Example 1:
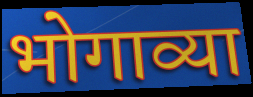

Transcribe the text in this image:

भोगाव्या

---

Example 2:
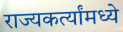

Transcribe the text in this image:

राज्यकर्त्यांमध्ये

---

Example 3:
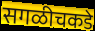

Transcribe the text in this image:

सगळीचकडे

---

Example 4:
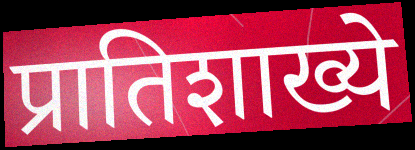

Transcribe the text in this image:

प्रातिशाख्ये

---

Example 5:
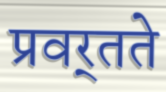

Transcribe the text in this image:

प्रवर्तते